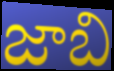
జాబి